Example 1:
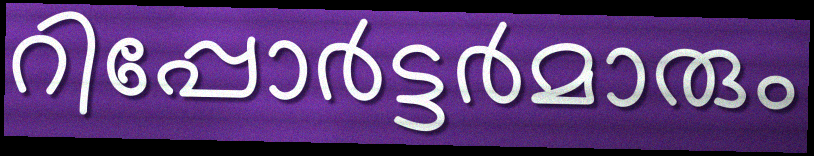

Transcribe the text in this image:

റിപ്പോർട്ടർമാരും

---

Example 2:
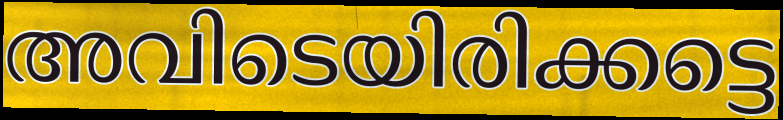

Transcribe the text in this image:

അവിടെയിരിക്കട്ടെ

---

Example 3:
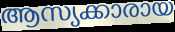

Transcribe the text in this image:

ആസ്യക്കാരായ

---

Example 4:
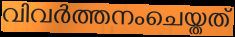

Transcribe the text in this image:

വിവർത്തനംചെയ്തത്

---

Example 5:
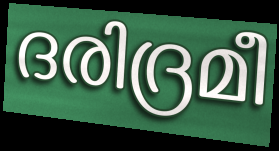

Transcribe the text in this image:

ദരിദ്രമീ